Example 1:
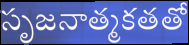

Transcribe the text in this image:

సృజనాత్మకతతో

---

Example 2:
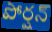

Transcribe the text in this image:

పోర్షన్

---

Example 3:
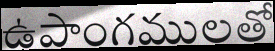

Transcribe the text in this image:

ఉపాంగములతో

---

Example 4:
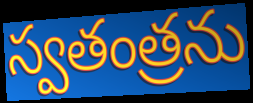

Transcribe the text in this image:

స్వతంత్రను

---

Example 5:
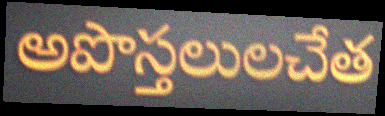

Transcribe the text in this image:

అపొస్తలులచేత